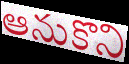
ఆనుకొని